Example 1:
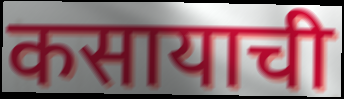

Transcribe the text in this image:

कसायाची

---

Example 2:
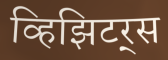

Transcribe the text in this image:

व्हिझिटर्स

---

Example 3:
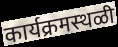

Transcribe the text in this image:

कार्यक्रमस्थळी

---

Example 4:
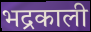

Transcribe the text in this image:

भद्रकाली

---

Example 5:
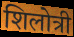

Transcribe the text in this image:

शिलोत्री